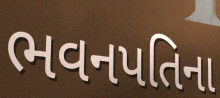
ભવનપતિના